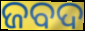
ଜବଦ